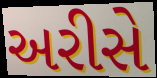
અરીસે